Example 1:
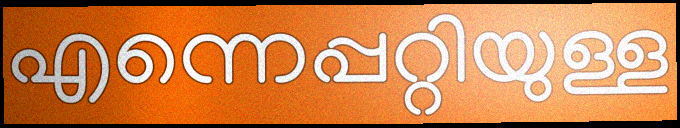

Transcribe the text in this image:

എന്നെപ്പറ്റിയുള്ള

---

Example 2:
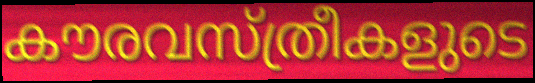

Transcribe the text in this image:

കൗരവസ്ത്രീകളുടെ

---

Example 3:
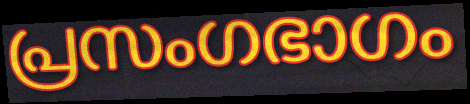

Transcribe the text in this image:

പ്രസംഗഭാഗം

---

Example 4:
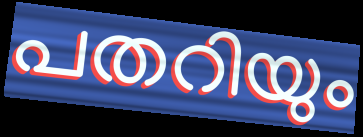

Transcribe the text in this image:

പതറിയും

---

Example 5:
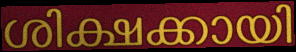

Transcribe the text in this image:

ശിക്ഷക്കായി